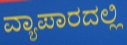
ವ್ಯಾಪಾರದಲ್ಲಿ